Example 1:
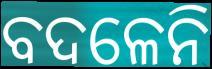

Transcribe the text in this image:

ବଦଳେନି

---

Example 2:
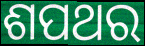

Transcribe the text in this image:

ଶପଥର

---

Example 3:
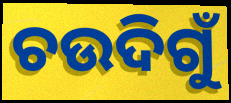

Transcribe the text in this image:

ଚଉଦିଗୁଁ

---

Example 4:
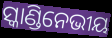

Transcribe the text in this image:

ସ୍କାଣ୍ଡିନେଭୀୟ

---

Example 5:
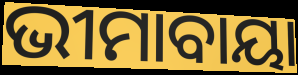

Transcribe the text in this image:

ଭୀମାବାୟା